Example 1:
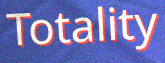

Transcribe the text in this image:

Totality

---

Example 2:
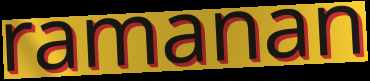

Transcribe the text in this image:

ramanan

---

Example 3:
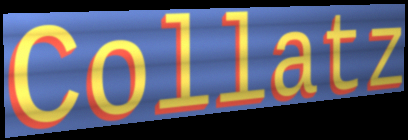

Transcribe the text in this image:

Collatz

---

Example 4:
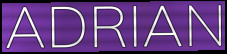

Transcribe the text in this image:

ADRIAN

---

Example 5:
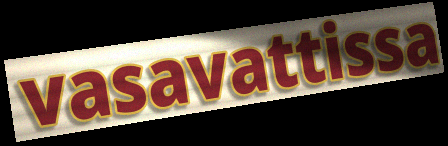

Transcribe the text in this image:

vasavattissa